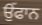
ਉੱਫਾਨ